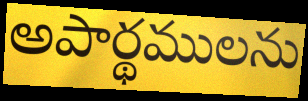
అపార్థములను